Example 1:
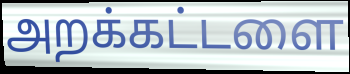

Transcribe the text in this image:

அறக்கட்டளை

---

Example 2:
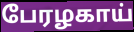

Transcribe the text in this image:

பேரழகாய்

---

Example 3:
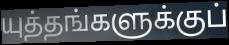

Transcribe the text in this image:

யுத்தங்களுக்குப்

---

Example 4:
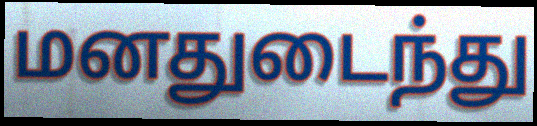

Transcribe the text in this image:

மனதுடைந்து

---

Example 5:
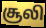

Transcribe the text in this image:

சூலி